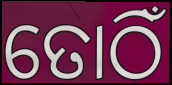
ତୋଠିଁ